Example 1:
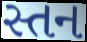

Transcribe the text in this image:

સ્તન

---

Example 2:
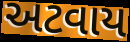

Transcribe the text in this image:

અટવાય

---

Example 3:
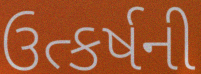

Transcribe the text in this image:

ઉત્કર્ષની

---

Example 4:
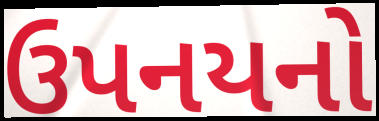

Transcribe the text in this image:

ઉપનયનો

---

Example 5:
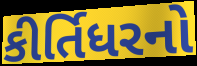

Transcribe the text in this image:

કીર્તિધરનો